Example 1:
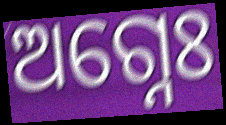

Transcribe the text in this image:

ଅଗ୍ନେଃ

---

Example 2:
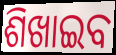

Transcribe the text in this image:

ଶିଖାଇବ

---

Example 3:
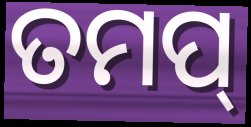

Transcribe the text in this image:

ତମପ୍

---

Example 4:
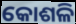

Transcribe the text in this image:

କୋଶଳି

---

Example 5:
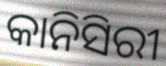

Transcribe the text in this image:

କାନିସିରୀ